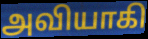
அவியாகி